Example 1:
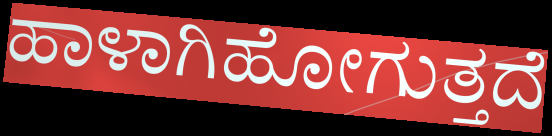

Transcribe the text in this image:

ಹಾಳಾಗಿಹೋಗುತ್ತದೆ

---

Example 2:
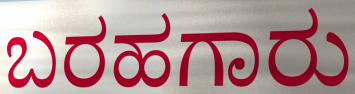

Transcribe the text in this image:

ಬರಹಗಾರು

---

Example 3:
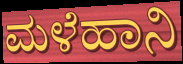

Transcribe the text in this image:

ಮಳೆಹಾನಿ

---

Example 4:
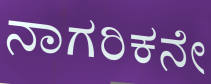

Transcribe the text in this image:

ನಾಗರಿಕನೇ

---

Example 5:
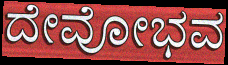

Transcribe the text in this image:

ದೇವೋಭವ